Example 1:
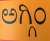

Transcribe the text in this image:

ಅಗ್ಗಿಂ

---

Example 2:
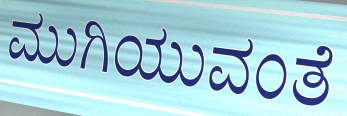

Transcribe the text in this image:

ಮುಗಿಯುವಂತೆ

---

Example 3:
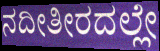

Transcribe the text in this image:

ನದೀತೀರದಲ್ಲೇ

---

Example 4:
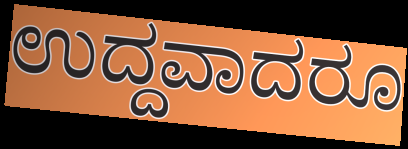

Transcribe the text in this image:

ಉದ್ದವಾದರೂ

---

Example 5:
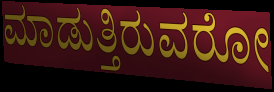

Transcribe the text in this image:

ಮಾಡುತ್ತಿರುವರೋ